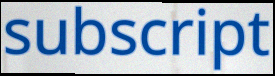
subscript